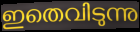
ഇതെവിടുന്നു